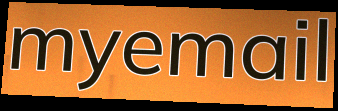
myemail